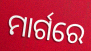
ମାର୍ଗରେ